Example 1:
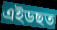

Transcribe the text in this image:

এইডছত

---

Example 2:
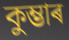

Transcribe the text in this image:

কুম্ভাৰ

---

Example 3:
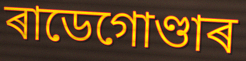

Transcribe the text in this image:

ৰাডেগোণ্ডাৰ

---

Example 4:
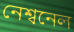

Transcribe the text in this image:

নেশ্বনেল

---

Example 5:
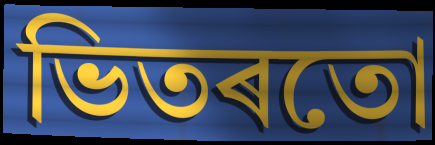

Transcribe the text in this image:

ভিতৰতো